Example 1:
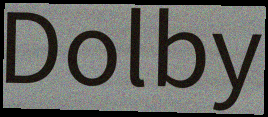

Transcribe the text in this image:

Dolby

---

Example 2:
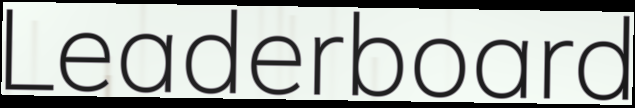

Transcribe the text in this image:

Leaderboard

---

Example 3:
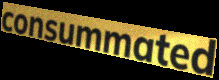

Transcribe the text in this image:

consummated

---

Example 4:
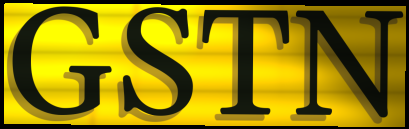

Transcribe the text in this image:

GSTN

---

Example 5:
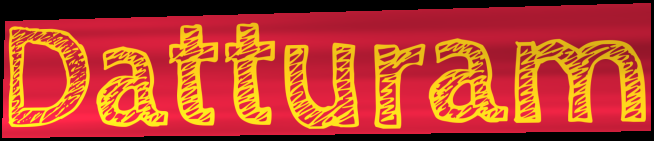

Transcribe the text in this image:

Datturam